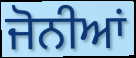
ਜੋਨੀਆਂ